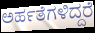
ಅರ್ಹತೆಗಳಿದ್ದರೆ